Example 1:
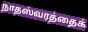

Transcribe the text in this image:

நாதஸ்வரத்தைக்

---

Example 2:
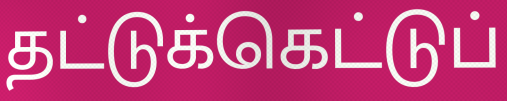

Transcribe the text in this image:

தட்டுக்கெட்டுப்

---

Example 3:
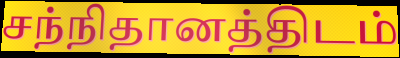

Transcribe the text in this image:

சந்நிதானத்திடம்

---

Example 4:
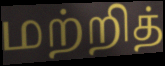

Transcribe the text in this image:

மற்றித்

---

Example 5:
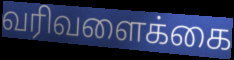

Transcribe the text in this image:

வரிவளைக்கை